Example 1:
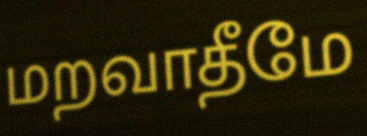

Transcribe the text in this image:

மறவாதீமே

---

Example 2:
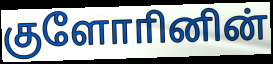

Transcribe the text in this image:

குளோரினின்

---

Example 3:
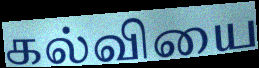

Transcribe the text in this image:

கல்வியை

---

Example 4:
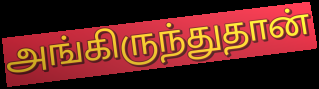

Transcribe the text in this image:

அங்கிருந்துதான்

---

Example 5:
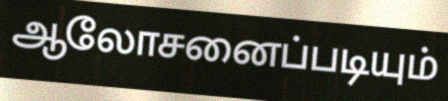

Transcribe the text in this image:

ஆலோசனைப்படியும்